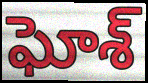
ఘోశ్